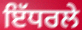
ਇੱਧਰਲੇ